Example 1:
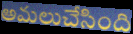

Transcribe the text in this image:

అమలుచేసింది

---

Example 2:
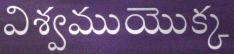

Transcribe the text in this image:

విశ్వముయొక్క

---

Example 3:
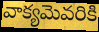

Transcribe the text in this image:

వాక్యమెవరికి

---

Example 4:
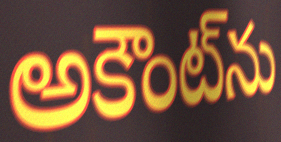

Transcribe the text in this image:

అకౌంట్‌ను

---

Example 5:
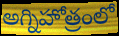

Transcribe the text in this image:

అగ్నిహోత్రంలో